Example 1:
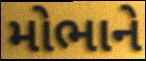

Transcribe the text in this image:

મોભાને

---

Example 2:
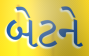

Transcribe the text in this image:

બેટને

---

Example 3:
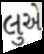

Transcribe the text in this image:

લુએ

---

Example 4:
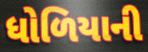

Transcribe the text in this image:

ધોળિયાની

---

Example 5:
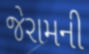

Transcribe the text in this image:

જેરામની